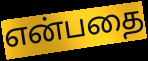
என்பதை